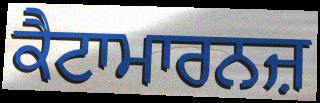
ਕੈਟਾਮਾਰਨਜ਼